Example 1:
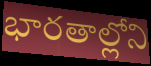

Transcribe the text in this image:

భారతాల్లోని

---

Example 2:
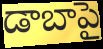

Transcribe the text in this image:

డాబాపై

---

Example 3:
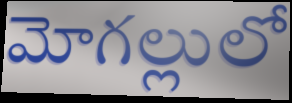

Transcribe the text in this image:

మోగల్లులో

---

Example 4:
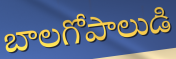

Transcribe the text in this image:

బాలగోపాలుడి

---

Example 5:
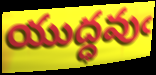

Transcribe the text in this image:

యుద్ధవుఁ